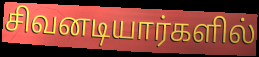
சிவனடியார்களில்